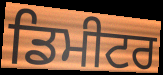
ਡਿਮੀਟਰ